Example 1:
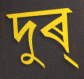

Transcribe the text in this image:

দুৰ্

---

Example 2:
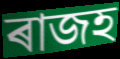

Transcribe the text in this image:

ৰাজহ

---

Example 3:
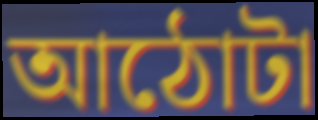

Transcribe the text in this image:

আঠোটা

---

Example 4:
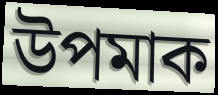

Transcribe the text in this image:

উপমাক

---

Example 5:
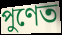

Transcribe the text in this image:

পুণেত